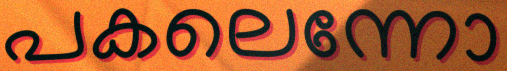
പകലെന്നോ